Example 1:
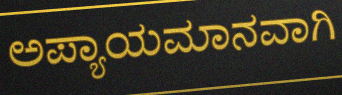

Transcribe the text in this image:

ಅಪ್ಯಾಯಮಾನವಾಗಿ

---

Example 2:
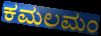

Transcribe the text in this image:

ಕಮಲಮಂ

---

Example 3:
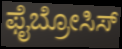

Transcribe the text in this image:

ಫೈಬ್ರೋಸಿಸ್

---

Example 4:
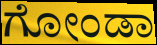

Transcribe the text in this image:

ಗೋಂಡಾ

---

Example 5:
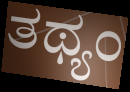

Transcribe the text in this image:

ತಥ್ಯಂ